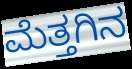
ಮೆತ್ತಗಿನ